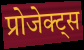
प्रोजेक्ट्स